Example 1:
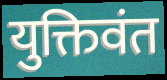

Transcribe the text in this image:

युक्तिवंत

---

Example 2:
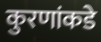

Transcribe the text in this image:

कुरणांकडे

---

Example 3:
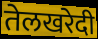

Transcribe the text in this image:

तेलखरेदी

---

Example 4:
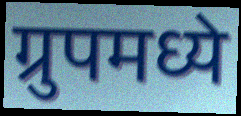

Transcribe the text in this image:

ग्रुपमध्ये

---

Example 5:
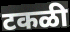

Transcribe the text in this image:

टकळी